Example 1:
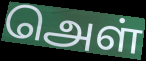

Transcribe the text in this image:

அெள்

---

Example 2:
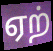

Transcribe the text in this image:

ஏற்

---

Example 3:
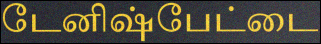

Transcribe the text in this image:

டேனிஷ்பேட்டை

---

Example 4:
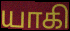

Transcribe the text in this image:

யாகி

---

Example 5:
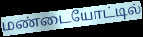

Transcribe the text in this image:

மண்டையோட்டில்